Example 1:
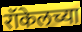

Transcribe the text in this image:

रॉकेलच्या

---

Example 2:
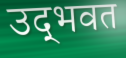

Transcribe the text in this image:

उद्‌भवत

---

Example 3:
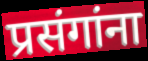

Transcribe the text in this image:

प्रसंगांना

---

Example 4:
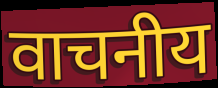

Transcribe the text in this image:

वाचनीय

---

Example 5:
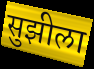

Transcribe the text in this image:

सुझीला